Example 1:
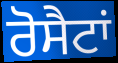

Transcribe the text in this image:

ਰੋਸੈਟਾਂ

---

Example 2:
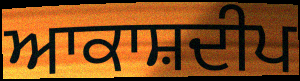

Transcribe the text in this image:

ਆਕਾਸ਼ਦੀਪ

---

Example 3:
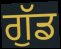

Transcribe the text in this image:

ਗੁੱਡ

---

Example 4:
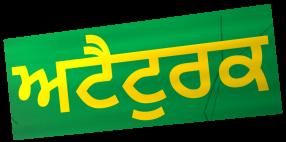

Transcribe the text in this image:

ਅਟੈਟੁਰਕ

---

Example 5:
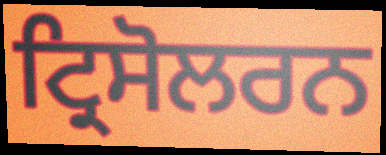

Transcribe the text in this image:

ਟ੍ਰਿਸੋਲਰਨ